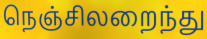
நெஞ்சிலறைந்து